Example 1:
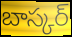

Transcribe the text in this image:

బాస్కర్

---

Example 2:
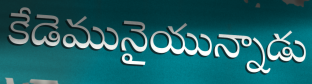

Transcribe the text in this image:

కేడెమునైయున్నాడు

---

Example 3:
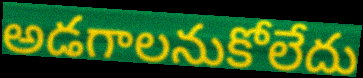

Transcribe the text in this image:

అడగాలనుకోలేదు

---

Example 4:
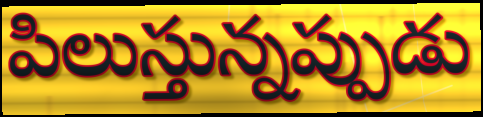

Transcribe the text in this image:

పిలుస్తున్నప్పుడు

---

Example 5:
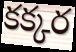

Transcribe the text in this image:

కక్కర